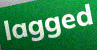
lagged